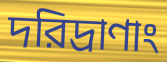
দরিদ্রাণাং